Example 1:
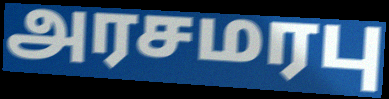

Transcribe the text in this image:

அரசமரபு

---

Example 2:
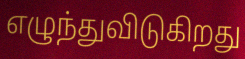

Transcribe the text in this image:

எழுந்துவிடுகிறது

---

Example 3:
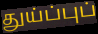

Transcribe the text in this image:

துய்ப்புப்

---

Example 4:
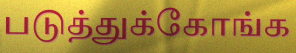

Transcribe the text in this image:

படுத்துக்கோங்க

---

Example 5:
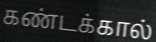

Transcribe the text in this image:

கண்டக்கால்